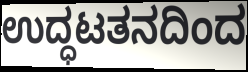
ಉದ್ಧಟತನದಿಂದ